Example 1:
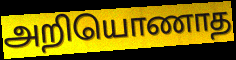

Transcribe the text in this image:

அறியொணாத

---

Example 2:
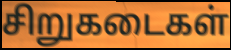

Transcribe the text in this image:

சிறுகடைகள்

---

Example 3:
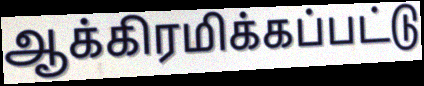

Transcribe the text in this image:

ஆக்கிரமிக்கப்பட்டு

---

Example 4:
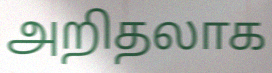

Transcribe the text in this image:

அறிதலாக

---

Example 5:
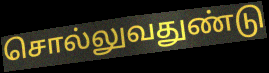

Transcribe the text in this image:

சொல்லுவதுண்டு